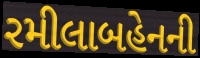
રમીલાબહેનની